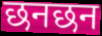
छनछन